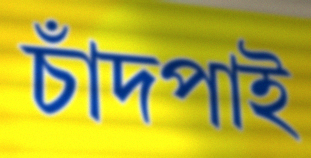
চাঁদপাই